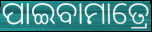
ପାଇବାମାତ୍ରେ